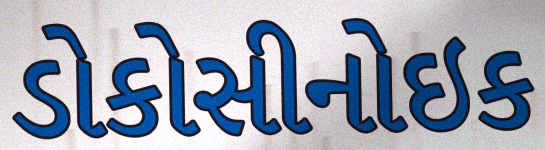
ડોકોસીનોઇક